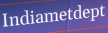
Indiametdept